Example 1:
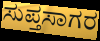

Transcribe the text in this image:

ಸುಪ್ತಸಾಗರ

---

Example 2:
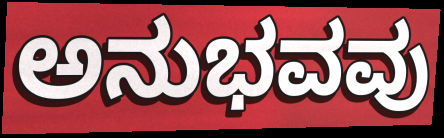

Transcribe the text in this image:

ಅನುಭವವು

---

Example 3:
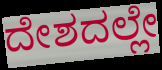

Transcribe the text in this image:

ದೇಶದಲ್ಲೇ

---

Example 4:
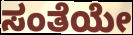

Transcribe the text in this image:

ಸಂತೆಯೇ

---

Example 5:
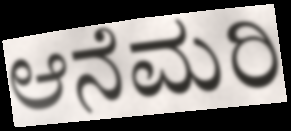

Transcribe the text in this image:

ಆನೆಮರಿ